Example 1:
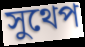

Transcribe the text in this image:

সুথেপ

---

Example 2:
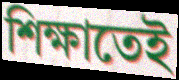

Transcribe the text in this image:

শিক্ষাতেই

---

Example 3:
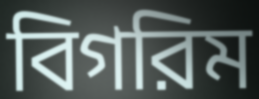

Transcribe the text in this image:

বিগরিম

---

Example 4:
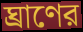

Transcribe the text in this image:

ঘ্রাণের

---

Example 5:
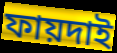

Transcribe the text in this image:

ফায়দাই